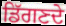
ਡਿੱਗਣਦੇ